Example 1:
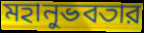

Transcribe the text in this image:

মহানুভবতার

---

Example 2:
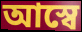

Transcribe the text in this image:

আস্বে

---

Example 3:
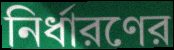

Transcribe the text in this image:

নির্ধারণের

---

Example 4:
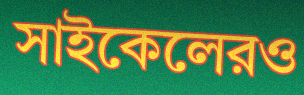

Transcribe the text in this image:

সাইকেলেরও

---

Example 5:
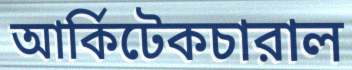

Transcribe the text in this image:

আর্কিটেকচারাল